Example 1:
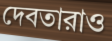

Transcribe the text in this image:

দেবতারাও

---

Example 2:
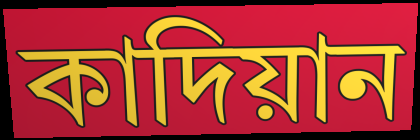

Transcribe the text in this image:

কাদিয়ান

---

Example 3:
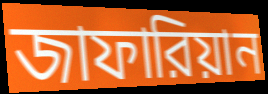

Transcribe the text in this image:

জাফারিয়ান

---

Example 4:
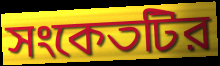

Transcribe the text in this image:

সংকেতটির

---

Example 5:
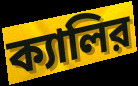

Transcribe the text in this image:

ক্যালির